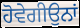
ਹੋਵੇਗੀਉਨਾਂ